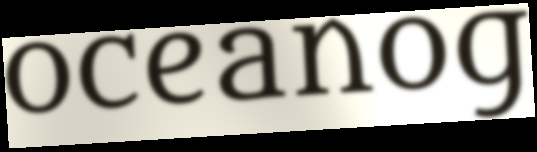
oceanog